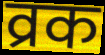
व्रक